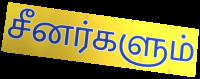
சீனர்களும்